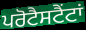
ਪਰੋਟੈਸਟੈਂਟਾਂ